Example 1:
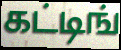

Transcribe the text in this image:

கட்டிங்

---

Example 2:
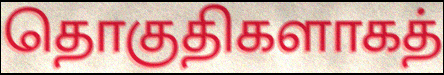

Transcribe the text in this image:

தொகுதிகளாகத்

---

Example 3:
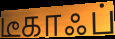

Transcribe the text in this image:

டீகாஃப்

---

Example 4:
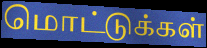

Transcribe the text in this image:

மொட்டுக்கள்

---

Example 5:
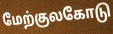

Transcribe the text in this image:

மேற்குலகோடு